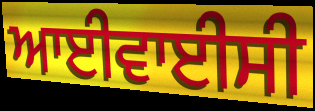
ਆਈਵਾਈਸੀ